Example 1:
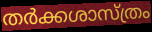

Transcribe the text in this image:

തർക്കശാസ്ത്രം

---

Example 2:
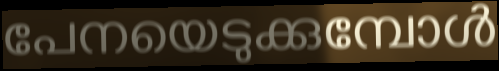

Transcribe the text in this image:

പേനയെടുക്കുമ്പോൾ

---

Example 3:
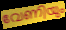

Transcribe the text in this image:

വേണിയും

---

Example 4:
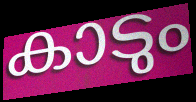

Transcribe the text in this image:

കാടും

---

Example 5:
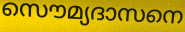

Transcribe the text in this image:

സൌമ്യദാസനെ